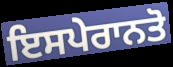
ਇਸਪੇਰਾਨਤੋ